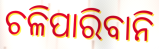
ଚଳିପାରିବାନି